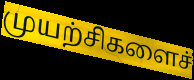
முயற்சிகளைச்